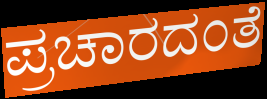
ಪ್ರಚಾರದಂತೆ